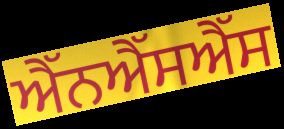
ਐੱਨਐੱਸਐੱਸ